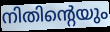
നിതിന്റെയും